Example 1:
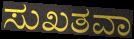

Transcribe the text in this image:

ಸುಖತವಾ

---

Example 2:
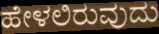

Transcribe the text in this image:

ಹೇಳಲಿರುವುದು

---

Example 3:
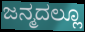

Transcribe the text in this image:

ಜನ್ಮದಲ್ಲೂ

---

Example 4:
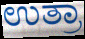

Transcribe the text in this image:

ಉತ್ರಾ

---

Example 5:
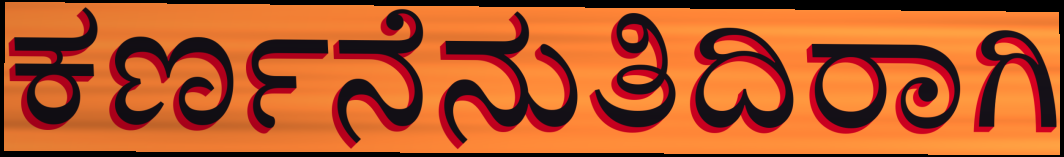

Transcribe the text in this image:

ಕರ್ಣನೆನುತಿದಿರಾಗಿ